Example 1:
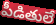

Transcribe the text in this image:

పీడితులే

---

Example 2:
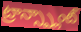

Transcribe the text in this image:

ట్రాన్స్ప్లాంట్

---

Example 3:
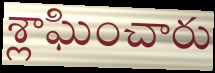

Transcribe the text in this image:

శ్లాఘించారు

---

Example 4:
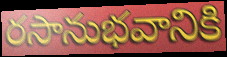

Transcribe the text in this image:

రసానుభవానికి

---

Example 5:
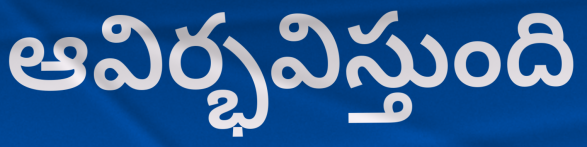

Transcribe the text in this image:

ఆవిర్భవిస్తుంది